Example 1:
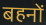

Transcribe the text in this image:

बहनों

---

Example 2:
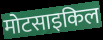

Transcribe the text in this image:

मोटसाइकिल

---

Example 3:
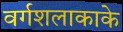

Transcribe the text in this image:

वर्गशलाकाके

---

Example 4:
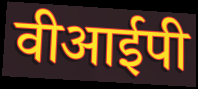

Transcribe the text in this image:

वीआईपी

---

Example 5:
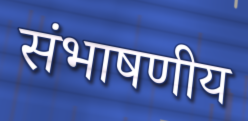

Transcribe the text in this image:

संभाषणीय